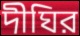
দীঘির